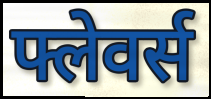
फ्लेवर्स